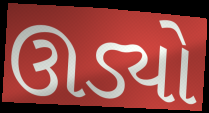
ઊડ્યો